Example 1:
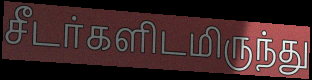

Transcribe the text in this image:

சீடர்களிடமிருந்து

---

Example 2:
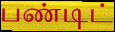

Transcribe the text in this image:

பண்டிட்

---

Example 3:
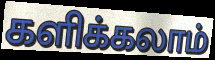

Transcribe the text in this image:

களிக்கலாம்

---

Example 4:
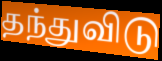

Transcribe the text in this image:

தந்துவிடு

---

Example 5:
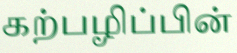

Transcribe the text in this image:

கற்பழிப்பின்